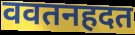
ववतनहदत